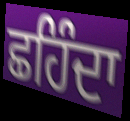
ਛਹਿੰਦਾ